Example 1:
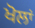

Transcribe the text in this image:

ਖੋਲਾਂ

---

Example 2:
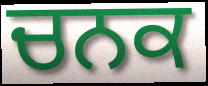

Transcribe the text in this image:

ਚਨਕ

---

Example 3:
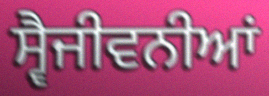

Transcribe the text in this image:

ਸ੍ਵੈਜੀਵਨੀਆਂ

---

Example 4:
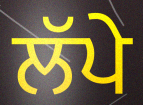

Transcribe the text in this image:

ਲੱਪੇ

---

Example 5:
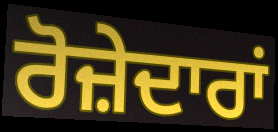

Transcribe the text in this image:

ਰੋਜ਼ੇਦਾਰਾਂ